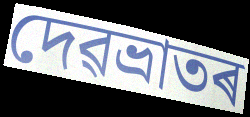
দেৱভ্ৰাতৰ